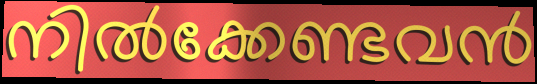
നിൽക്കേണ്ടവൻ